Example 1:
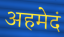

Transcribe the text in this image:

अहमेदं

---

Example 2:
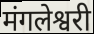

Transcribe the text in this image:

मंगलेश्वरी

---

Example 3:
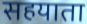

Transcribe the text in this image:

सहयाता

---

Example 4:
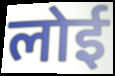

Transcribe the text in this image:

लोई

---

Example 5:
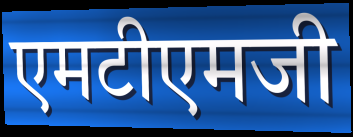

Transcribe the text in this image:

एमटीएमजी